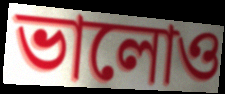
ভালোও